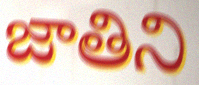
జాతిని